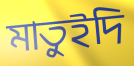
মাতুইদি